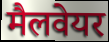
मैलवेयर